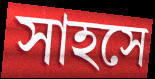
সাহসে